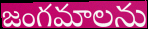
జంగమాలను